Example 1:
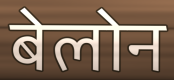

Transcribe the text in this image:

बेलोन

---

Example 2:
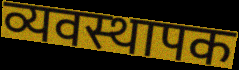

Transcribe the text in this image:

व्यवस्थापक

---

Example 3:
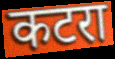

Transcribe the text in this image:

कटरा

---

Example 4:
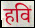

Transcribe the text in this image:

हवि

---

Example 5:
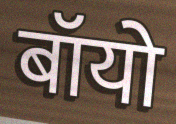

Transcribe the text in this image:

बॉयो